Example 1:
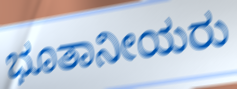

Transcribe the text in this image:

ಭೂತಾನೀಯರು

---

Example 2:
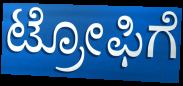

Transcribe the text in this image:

ಟ್ರೋಫಿಗೆ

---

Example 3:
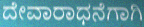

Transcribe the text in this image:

ದೇವಾರಾಧನೆಗಾಗಿ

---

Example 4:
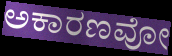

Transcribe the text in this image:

ಅಕಾರಣವೋ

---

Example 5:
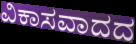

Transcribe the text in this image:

ವಿಕಾಸವಾದದ